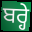
ਬਰ੍ਹੇ